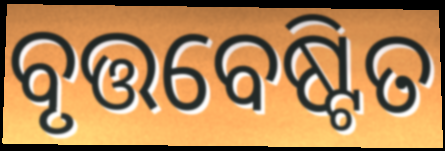
ବୃତ୍ତବେଷ୍ଟିତ